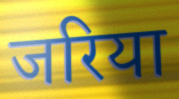
जरिया